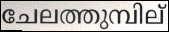
ചേലത്തുമ്പില്